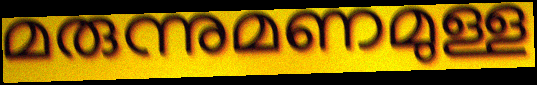
മരുന്നുമണമുള്ള